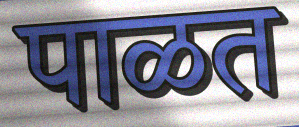
पाळत